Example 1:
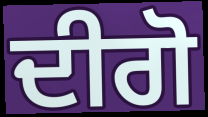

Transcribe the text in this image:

ਦੀਗੋ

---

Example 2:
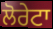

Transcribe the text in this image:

ਲੋਰੇਟਾ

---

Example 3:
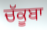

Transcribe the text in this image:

ਚੱਕੂਬਾ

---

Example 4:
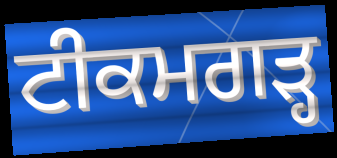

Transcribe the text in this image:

ਟੀਕਮਗੜ੍ਹ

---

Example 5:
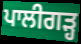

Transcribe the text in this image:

ਪਾਲੀਗੜ੍ਹ